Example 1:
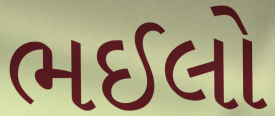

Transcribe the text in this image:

ભઈલો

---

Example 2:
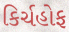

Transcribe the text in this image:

કિર્ચહોફ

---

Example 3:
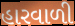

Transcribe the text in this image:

હારવાળી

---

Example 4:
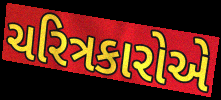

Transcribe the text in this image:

ચરિત્રકારોએ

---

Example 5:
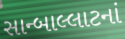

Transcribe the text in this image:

સાન્બાલ્લાટનાં